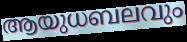
ആയുധബലവും